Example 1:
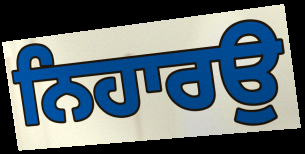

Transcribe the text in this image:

ਨਿਹਾਰਉ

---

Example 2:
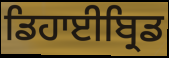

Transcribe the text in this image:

ਡਿਹਾਈਬ੍ਰਿਡ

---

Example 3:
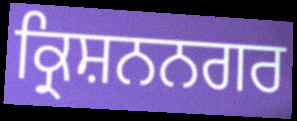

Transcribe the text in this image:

ਕ੍ਰਿਸ਼ਨਨਗਰ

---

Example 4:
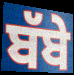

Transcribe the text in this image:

ਬੱਬੇ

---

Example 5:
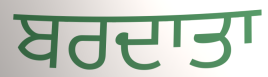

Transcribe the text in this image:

ਬਰਦਾਤਾ